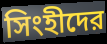
সিংহীদের